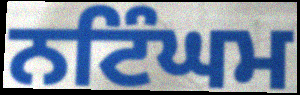
ਨਟਿੰਘਮ